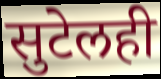
सुटेलही